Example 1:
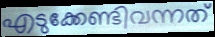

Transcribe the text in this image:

എടുക്കേണ്ടിവന്നത്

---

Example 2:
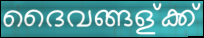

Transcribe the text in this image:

ദൈവങ്ങള്ക്ക്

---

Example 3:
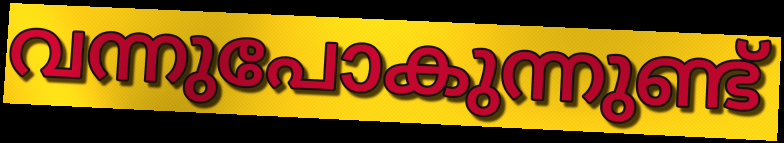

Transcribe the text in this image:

വന്നുപോകുന്നുണ്ട്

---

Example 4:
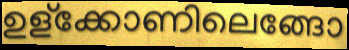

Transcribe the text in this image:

ഉള്ക്കോണിലെങ്ങോ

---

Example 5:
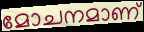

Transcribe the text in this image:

മോചനമാണ്